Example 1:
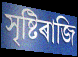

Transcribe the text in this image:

সৃষ্টিৰাজি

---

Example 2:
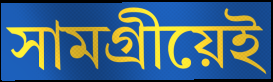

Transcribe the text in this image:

সামগ্ৰীয়েই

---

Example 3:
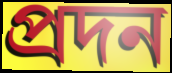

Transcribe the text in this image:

প্ৰদন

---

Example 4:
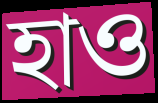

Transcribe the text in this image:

হাও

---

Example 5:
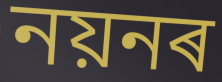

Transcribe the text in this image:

নয়নৰ